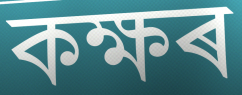
কক্ষৰ